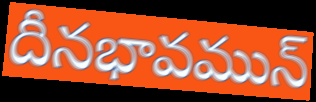
దీనభావమున్